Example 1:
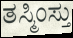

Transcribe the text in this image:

ತಸ್ಮಿಂಸ್ತು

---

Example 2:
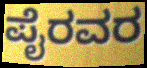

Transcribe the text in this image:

ಪೈರವರ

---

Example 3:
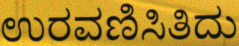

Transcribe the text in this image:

ಉರವಣಿಸಿತಿದು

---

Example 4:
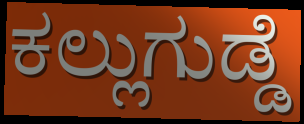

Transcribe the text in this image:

ಕಲ್ಲುಗುಡ್ಡೆ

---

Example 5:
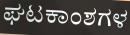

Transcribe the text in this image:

ಘಟಕಾಂಶಗಳ